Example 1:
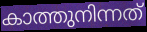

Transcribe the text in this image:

കാത്തുനിന്നത്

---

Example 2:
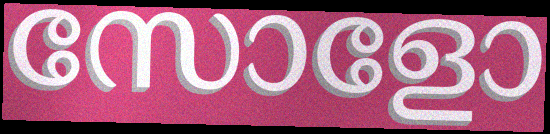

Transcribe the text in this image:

സോളോ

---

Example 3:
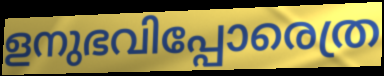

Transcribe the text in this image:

ളനുഭവിപ്പോരെത്ര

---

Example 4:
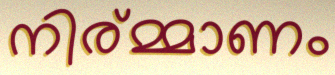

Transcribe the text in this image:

നിര്മ്മാണം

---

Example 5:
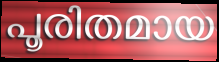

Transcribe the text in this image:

പൂരിതമായ